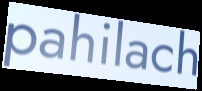
pahilach